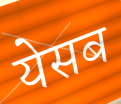
येसब